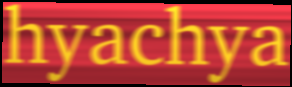
hyachya